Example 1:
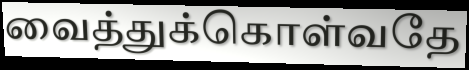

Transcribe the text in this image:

வைத்துக்கொள்வதே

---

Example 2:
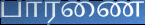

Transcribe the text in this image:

பாரணை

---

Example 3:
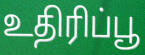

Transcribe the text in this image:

உதிரிப்பூ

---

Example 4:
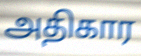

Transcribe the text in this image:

அதிகார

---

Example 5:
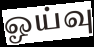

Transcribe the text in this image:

ஓய்வு